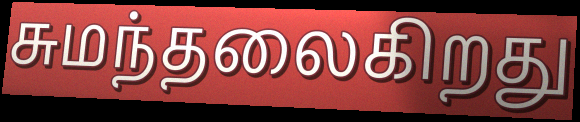
சுமந்தலைகிறது